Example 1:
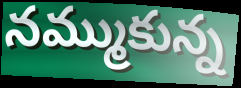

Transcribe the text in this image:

నమ్ముకున్న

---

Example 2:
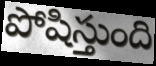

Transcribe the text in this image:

పోషిస్తుంది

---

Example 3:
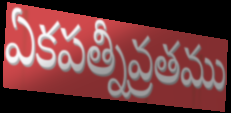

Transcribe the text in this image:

ఏకపత్నీవ్రతము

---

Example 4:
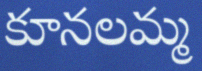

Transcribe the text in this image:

కూనలమ్మ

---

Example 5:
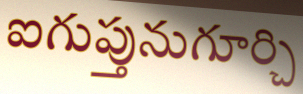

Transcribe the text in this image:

ఐగుప్తునుగూర్చి